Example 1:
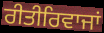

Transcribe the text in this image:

ਰੀਤੀਰਿਵਾਜਾਂ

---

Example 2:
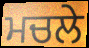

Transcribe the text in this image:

ਮਚਲੇ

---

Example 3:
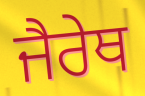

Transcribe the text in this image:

ਜੈਰੇਥ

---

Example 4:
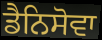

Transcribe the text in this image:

ਡੈਨਿਸੋਵਾ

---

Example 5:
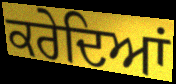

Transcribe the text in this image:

ਕਰੇਦਿਆਂ